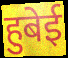
हुबेई